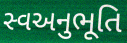
સ્વઅનુભૂતિ